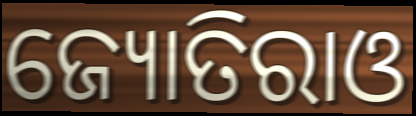
ଜ୍ୟୋତିରାଓ